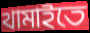
থামাইতে